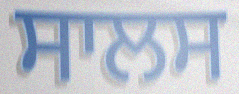
ਸਾਲਸ